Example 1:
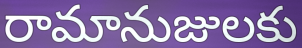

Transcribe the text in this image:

రామానుజులకు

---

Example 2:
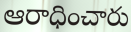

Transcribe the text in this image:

ఆరాధించారు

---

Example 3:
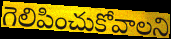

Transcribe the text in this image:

గెలిపించుకోవాలని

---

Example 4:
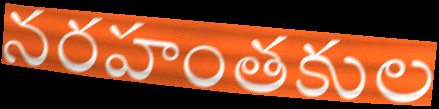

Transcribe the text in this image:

నరహంతకుల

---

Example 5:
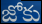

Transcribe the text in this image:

జోకు